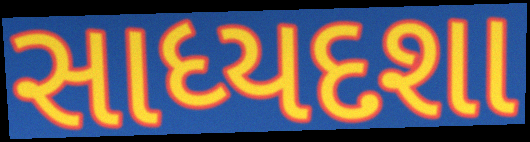
સાધ્યદશા